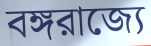
বঙ্গরাজ্যে